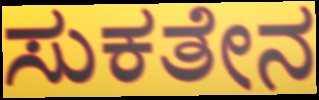
ಸುಕತೇನ